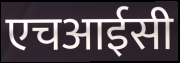
एचआईसी